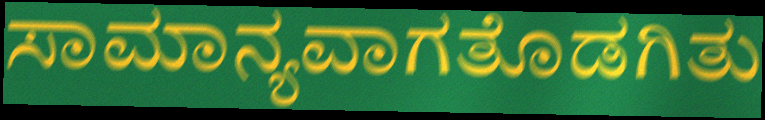
ಸಾಮಾನ್ಯವಾಗತೊಡಗಿತು